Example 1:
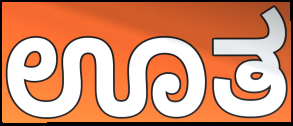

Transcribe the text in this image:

ಊತ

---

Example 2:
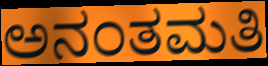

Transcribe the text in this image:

ಅನಂತಮತಿ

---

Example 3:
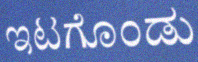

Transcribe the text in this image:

ಇಟಗೊಂಡು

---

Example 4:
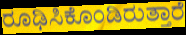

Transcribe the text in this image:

ರೂಢಿಸಿಕೊಂಡಿರುತ್ತಾರೆ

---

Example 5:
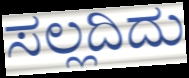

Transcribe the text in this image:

ಸಲ್ಲದಿದು